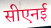
सीएनई